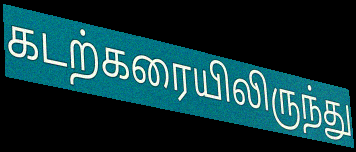
கடற்கரையிலிருந்து